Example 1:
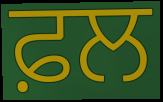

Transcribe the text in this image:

ਫ਼ਲ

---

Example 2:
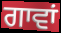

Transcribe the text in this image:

ਗਾਵਾਂ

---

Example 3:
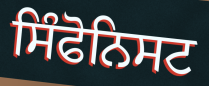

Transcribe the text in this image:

ਸਿੰਫੋਨਿਸਟ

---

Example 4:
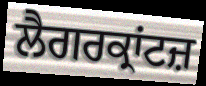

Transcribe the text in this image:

ਲੈਗਰਕ੍ਰਾਂਟਜ਼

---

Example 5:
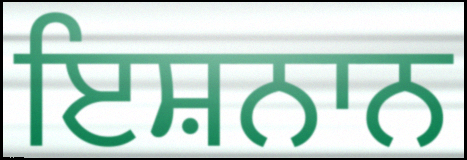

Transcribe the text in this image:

ਇਸ਼ਨਾਨ